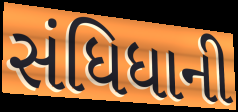
સંધિધાની